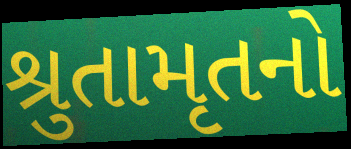
શ્રુતામૃતનો